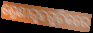
ଶ୍ରେଣୀଗୃହଗୁଡ଼ିକରେ